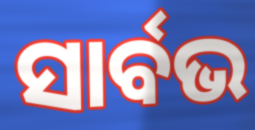
ସାର୍ବଭ